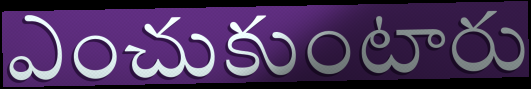
ఎంచుకుంటారు